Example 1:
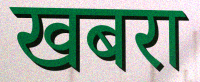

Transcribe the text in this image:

खबरा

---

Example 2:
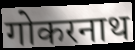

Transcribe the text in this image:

गोकरनाथ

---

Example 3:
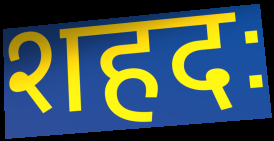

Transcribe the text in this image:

शहदः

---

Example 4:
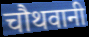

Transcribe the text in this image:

चौथवानी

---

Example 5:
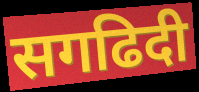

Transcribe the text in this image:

सगढिदी